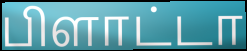
பிளாட்டா